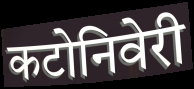
कटोनिवेरी